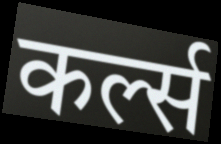
कर्ल्स